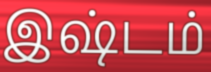
இஷ்டம்